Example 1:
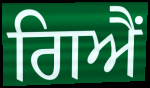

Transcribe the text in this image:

ਗਿਐਂ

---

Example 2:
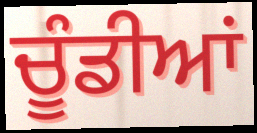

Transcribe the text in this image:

ਚੂੰਡੀਆਂ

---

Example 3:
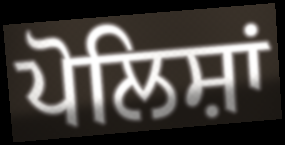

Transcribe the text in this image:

ਪੋਲਿਸ਼ਾਂ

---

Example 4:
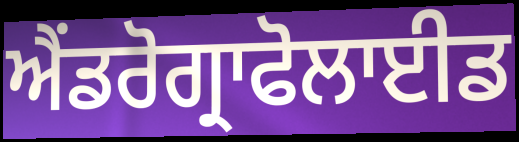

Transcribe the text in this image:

ਐਂਡਰੋਗ੍ਰਾਫੋਲਾਈਡ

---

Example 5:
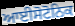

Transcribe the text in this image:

ਆਈਸੋਟੋਨਿਕ